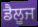
ਡੈਲੂਜ